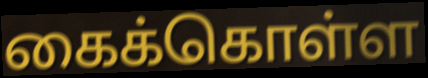
கைக்கொள்ள